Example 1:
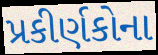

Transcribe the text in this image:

પ્રકીર્ણકોના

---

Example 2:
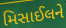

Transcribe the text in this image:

મિસાઈલને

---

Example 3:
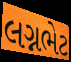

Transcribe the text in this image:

લગ્નભેટ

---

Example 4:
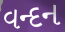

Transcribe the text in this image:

વન્દન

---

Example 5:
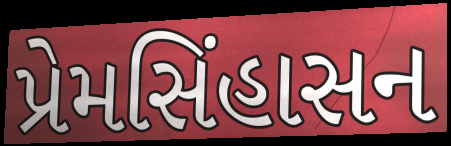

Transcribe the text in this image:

પ્રેમસિંહાસન